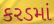
કરડમાં